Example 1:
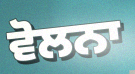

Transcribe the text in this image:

ਵੋਲਨਾ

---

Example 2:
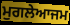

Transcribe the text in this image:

ਮੁਗਲੇਆਜਮ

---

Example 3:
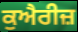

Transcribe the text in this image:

ਕੁਐਰੀਜ਼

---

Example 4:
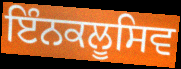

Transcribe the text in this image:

ਇੰਨਕਲੂਸਿਵ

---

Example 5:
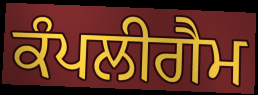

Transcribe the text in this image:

ਕੰਪਲੀਗੈਮ